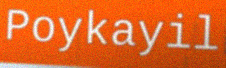
Poykayil